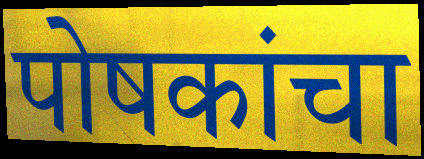
पोषकांचा